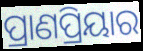
ପ୍ରାଣପ୍ରିୟାର